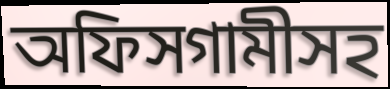
অফিসগামীসহ